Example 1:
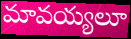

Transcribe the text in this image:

మావయ్యలూ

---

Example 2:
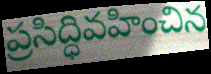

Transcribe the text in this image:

ప్రసిద్ధివహించిన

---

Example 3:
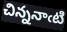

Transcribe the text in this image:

చిన్ననాఁటి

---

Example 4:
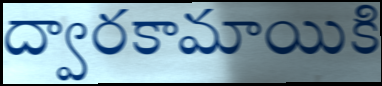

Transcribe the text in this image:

ద్వారకామాయికి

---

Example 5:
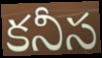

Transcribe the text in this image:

కనీస